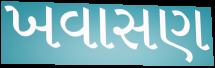
ખવાસણ